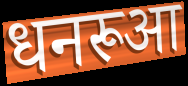
धनरूआ